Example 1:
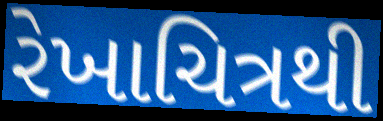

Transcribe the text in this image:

રેખાચિત્રથી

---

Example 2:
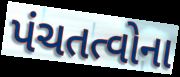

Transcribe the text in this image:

પંચતત્વોના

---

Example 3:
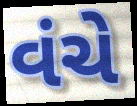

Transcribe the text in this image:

વંચે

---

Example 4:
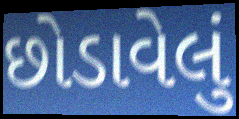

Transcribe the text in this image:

છોડાવેલું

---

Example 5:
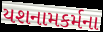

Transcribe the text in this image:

યશનામકર્મના